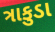
ત્રાકુડા